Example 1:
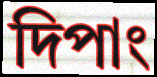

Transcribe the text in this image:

দিপাং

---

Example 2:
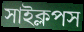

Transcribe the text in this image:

সাইক্লপস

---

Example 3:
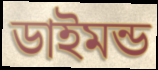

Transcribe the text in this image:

ডাইমন্ড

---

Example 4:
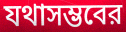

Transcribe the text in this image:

যথাসম্ভবের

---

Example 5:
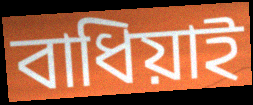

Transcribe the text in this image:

বাধিয়াই